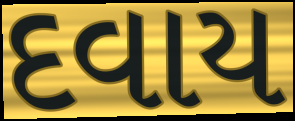
દવાય